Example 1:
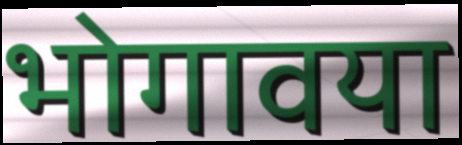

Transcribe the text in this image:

भोगावया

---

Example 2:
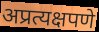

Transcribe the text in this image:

अप्रत्यक्षपणे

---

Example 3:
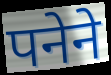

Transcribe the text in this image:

पनेने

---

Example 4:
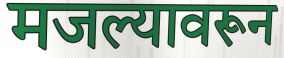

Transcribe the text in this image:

मजल्यावरून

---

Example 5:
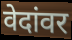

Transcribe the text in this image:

वेदांवर